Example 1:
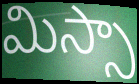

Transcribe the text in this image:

మిస్సా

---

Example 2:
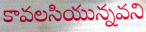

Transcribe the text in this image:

కావలసియున్నవని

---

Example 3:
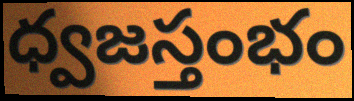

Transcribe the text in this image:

ధ్వజస్తంభం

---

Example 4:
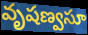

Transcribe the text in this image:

వృషణ్వసూ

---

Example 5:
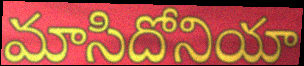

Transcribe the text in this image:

మాసిదోనియా